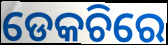
ଡେକଚିରେ